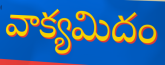
వాక్యమిదం